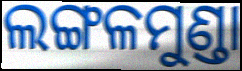
ଲଙ୍ଗଳମୁଣ୍ଡା